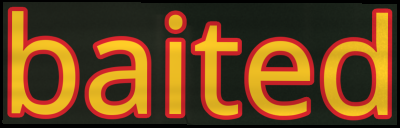
baited